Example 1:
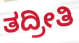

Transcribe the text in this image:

ತದ್ರೀತಿ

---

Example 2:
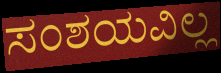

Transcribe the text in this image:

ಸಂಶಯವಿಲ್ಲ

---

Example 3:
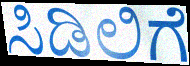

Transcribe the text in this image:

ಸಿಡಿಲಿಗೆ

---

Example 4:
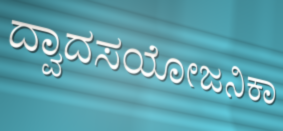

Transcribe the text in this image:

ದ್ವಾದಸಯೋಜನಿಕಾ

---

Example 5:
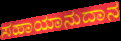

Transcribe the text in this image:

ಸಹಾಯಾನುದಾನ